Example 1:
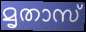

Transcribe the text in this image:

മൃതാസ്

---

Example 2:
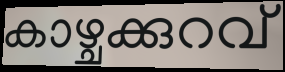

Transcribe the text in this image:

കാഴ്ചക്കുറവ്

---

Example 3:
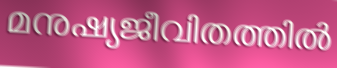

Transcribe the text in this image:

മനുഷ്യജീവിതത്തിൽ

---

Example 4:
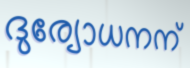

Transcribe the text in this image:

ദുര്യോധനന്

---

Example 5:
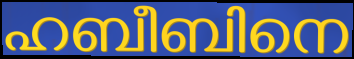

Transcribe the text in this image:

ഹബീബിനെ